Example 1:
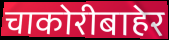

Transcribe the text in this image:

चाकोरीबाहेर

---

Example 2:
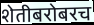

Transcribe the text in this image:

शेतीबरोबरच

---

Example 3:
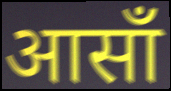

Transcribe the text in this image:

आसाँ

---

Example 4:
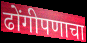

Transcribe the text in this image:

ढोंगीपणाचा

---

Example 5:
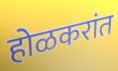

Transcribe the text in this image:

होळकरांत